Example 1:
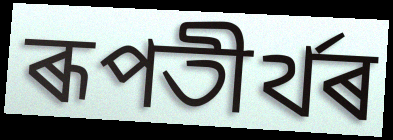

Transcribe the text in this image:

ৰূপতীৰ্থৰ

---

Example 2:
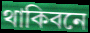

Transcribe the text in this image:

থাকিবনে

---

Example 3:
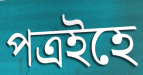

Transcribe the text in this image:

পত্ৰইহে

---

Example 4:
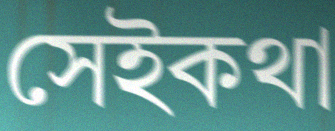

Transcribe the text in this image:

সেইকথা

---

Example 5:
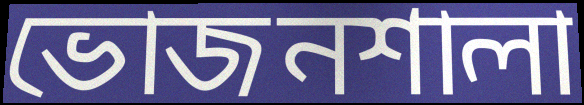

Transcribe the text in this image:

ভোজনশালা